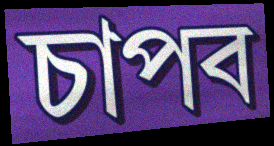
চাপব